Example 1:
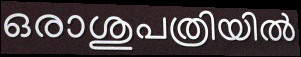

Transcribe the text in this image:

ഒരാശുപത്രിയിൽ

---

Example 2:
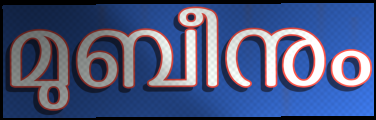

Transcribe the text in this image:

മുബീനും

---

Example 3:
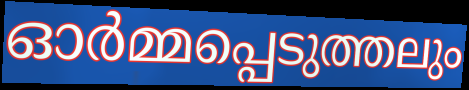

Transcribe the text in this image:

ഓർമ്മപ്പെടുത്തലും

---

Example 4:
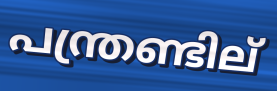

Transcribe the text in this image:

പന്ത്രണ്ടില്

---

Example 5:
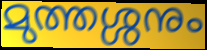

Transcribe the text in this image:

മുത്തശ്ശനും